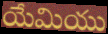
యేమియు